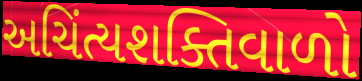
અચિંત્યશક્તિવાળો